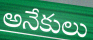
అనేకులు